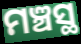
ମଞ୍ଚସ୍ଥ